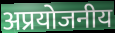
अप्रयोजनीय